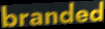
branded